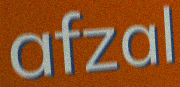
afzal